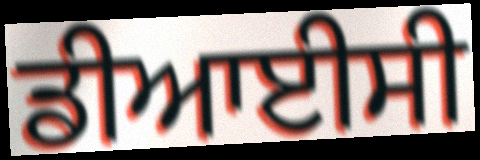
ਡੀਆਈਸੀ